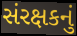
સંરક્ષકનું